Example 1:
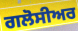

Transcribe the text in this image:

ਗਲੋਸੀਅਰ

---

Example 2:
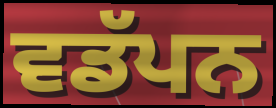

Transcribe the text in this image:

ਵਡੱਪਨ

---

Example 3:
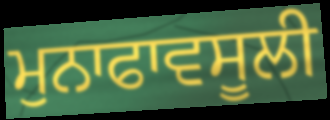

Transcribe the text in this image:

ਮੁਨਾਫਾਵਸੂਲੀ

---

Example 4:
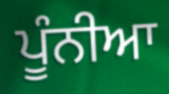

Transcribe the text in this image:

ਪੂੰਨੀਆ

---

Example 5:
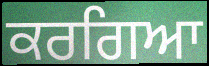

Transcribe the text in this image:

ਕਰਗਿਆ